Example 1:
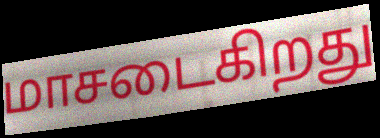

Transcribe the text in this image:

மாசடைகிறது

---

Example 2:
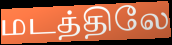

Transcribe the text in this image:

மடத்திலே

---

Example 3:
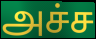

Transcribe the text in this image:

அச்ச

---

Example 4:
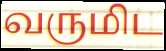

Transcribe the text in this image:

வருமிட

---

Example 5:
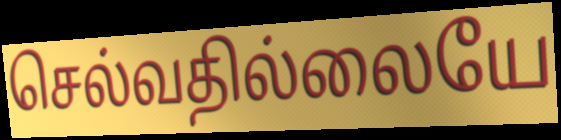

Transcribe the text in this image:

செல்வதில்லையே